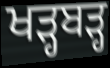
ਖੜ੍ਹਬੜ੍ਹ